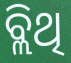
ବ୍ଲିଥି